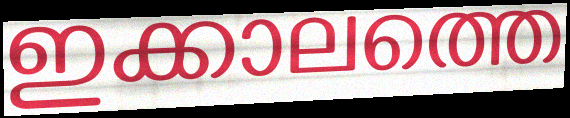
ഇക്കാലത്തെ